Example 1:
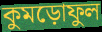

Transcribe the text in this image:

কুমড়োফুল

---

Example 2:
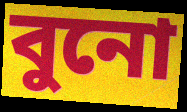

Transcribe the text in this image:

বুনো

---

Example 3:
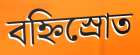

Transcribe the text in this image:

বহ্নিস্রোত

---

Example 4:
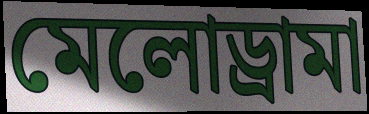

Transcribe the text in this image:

মেলোড্রামা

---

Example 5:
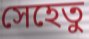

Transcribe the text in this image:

সেহেতু